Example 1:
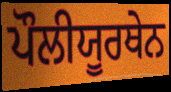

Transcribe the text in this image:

ਪੌਲੀਯੂਰਥੇਨ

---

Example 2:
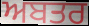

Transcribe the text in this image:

ਅਬਤਰ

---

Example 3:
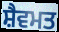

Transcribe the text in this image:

ਸ਼ੈਵਮਤ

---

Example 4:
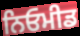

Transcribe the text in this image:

ਨਿਓਮੀਡ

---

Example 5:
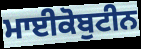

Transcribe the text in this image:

ਮਾਈਕੋਬੁਟੀਨ